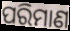
ପରିମାଣ